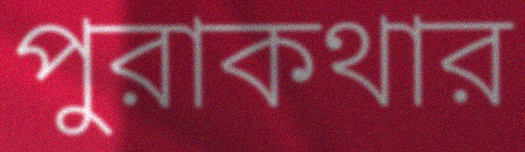
পুরাকথার